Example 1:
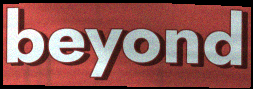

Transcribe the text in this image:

beyond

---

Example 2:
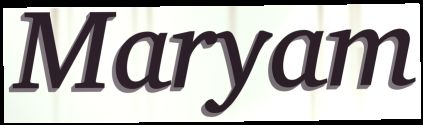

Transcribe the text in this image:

Maryam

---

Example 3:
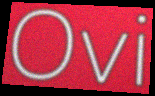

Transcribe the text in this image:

Ovi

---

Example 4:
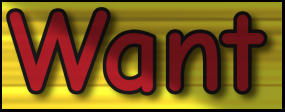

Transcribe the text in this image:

Want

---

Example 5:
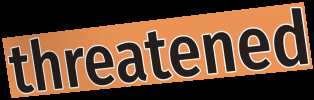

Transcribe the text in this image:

threatened